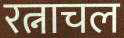
रत्नाचल